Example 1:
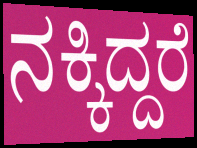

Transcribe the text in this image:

ನಕ್ಕಿದ್ದರೆ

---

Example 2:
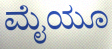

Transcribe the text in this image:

ಮೈಯೂ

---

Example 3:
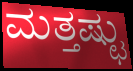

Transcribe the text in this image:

ಮತ್ತಷ್ಟು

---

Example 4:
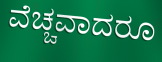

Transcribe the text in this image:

ವೆಚ್ಚವಾದರೂ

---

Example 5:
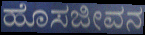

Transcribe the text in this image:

ಹೊಸಜೀವನ